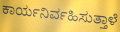
ಕಾರ್ಯನಿರ್ವಹಿಸುತ್ತಾಳೆ